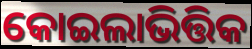
କୋଇଲାଭିତ୍ତିକ